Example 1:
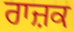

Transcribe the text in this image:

ਰਾਜ਼ਕ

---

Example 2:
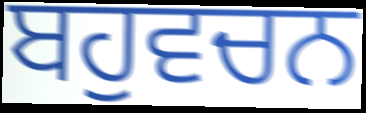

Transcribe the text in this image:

ਬਹੁਵਚਨ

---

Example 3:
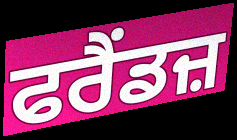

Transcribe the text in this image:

ਫਰੈਂਡਜ਼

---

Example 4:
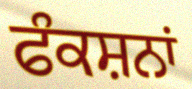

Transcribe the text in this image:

ਫੰਕਸ਼ਨਾਂ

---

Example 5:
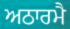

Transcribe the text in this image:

ਅਠਾਰਮੈ